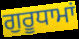
ਗੁਰੂਧਾਮਾਂ